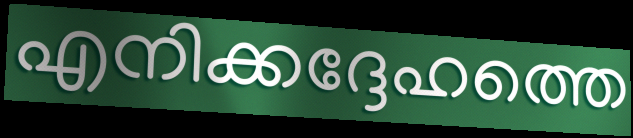
എനിക്കദ്ദേഹത്തെ